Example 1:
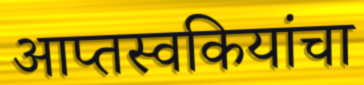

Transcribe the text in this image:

आप्तस्वकियांचा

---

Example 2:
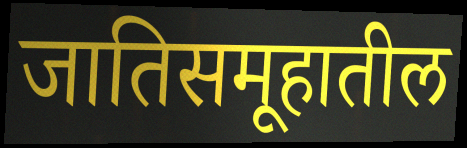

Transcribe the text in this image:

जातिसमूहातील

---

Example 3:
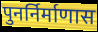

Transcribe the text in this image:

पुनर्निर्माणास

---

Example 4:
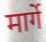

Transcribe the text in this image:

मार्गे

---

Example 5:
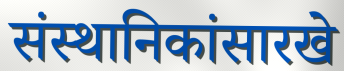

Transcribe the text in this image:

संस्थानिकांसारखे